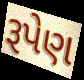
રૂપેણ